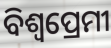
ବିଶ୍ବପ୍ରେମୀ